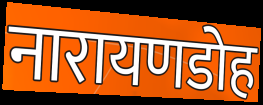
नारायणडोह